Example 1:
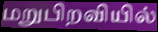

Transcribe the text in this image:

மறுபிறவியில்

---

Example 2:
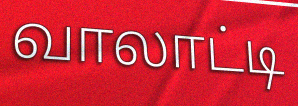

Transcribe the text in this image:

வாலாட்டி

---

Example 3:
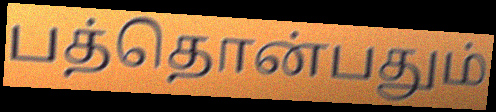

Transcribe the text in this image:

பத்தொன்பதும்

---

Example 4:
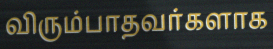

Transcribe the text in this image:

விரும்பாதவர்களாக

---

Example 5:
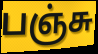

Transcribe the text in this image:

பஞ்சு